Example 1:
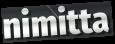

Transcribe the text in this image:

nimitta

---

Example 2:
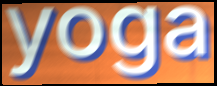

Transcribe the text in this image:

yoga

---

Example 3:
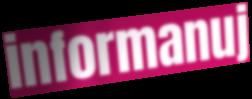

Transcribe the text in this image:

informanuj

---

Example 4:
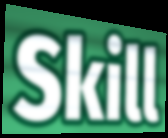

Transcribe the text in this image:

Skill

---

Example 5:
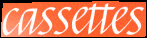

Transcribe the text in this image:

cassettes